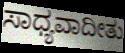
ಸಾಧ್ಯವಾದೀತು